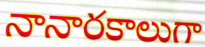
నానారకాలుగా